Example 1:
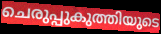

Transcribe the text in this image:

ചെരുപ്പുകുത്തിയുടെ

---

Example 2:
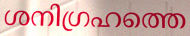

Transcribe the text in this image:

ശനിഗ്രഹത്തെ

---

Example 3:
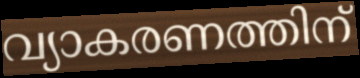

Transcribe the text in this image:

വ്യാകരണത്തിന്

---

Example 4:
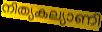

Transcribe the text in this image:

നിത്യകല്യാണി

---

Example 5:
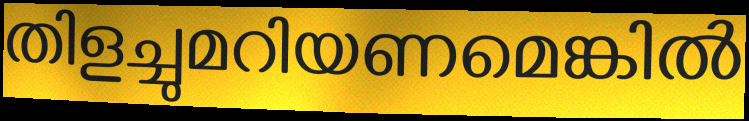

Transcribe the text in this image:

തിളച്ചുമറിയണമെങ്കിൽ